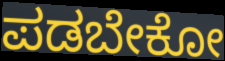
ಪಡಬೇಕೋ